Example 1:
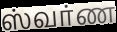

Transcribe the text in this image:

ஸ்வர்ண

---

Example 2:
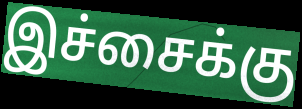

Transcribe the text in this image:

இச்சைக்கு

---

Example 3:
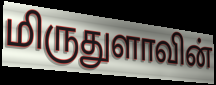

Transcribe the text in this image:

மிருதுளாவின்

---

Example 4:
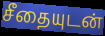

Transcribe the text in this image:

சீதையுடன்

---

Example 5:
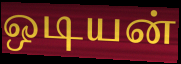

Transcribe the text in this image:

ஒடியன்